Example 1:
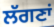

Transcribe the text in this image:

ਲੱਗਣਾਂ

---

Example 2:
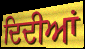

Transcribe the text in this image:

ਦਿਦੀਆਂ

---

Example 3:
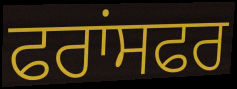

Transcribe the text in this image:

ਫਰਾਂਸਫਰ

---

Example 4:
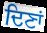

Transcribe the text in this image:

ਦਿਣਾਂ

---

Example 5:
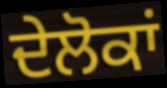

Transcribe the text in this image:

ਦੇਲੋਕਾਂ